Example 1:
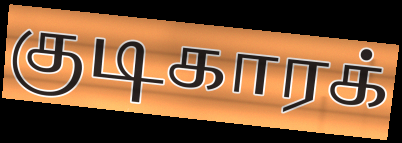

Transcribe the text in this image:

குடிகாரக்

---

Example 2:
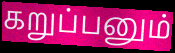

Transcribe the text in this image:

கறுப்பனும்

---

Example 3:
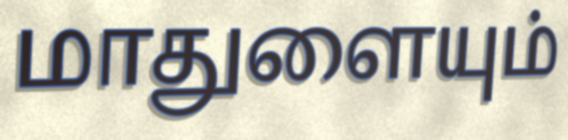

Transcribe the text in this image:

மாதுளையும்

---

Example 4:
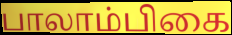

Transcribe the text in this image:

பாலாம்பிகை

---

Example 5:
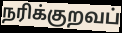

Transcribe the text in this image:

நரிக்குறவப்